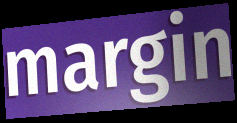
margin